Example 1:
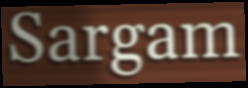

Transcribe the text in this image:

Sargam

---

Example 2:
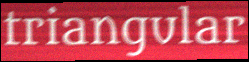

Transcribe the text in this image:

triangular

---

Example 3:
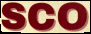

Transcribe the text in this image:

SCO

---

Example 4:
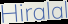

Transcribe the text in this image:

Hiralal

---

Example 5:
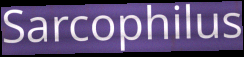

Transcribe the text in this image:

Sarcophilus